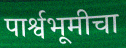
पार्श्वभूमीचा